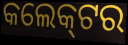
କଲେକ୍‌ଟର